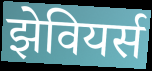
झेवियर्स